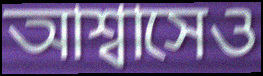
আশ্বাসেও